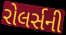
રોલર્સની